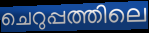
ചെറുപ്പത്തിലെ